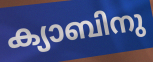
ക്യാബിനു